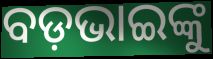
ବଡ଼ଭାଇଙ୍କୁ